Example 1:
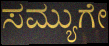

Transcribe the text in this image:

ಸಮ್ಯುಗೇ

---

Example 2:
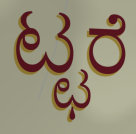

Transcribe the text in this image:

ಟ್ಟರೆ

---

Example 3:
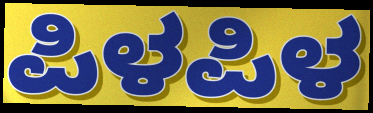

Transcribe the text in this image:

ಪಿಳಪಿಳ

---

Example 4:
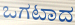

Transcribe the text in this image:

ಒಗಟಾದ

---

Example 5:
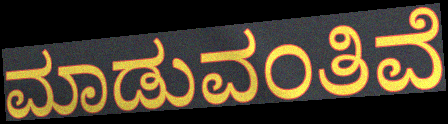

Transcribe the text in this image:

ಮಾಡುವಂತಿವೆ